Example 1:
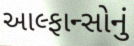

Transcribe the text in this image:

આલ્ફાન્સોનું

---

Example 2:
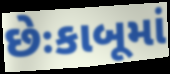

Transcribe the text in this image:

છેઃકાબૂમાં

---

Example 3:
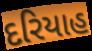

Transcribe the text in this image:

દરિયાહ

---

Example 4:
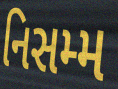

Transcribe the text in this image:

નિસમ્મ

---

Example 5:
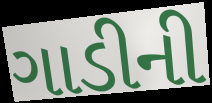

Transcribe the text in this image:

ગાડીની